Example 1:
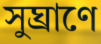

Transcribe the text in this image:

সুঘ্রাণে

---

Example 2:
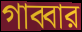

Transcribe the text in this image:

গাব্বার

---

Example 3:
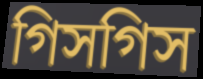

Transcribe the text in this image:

গিসগিস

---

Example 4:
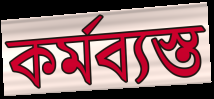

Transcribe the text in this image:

কর্মব্যস্ত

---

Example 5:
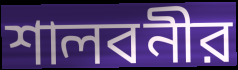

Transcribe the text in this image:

শালবনীর